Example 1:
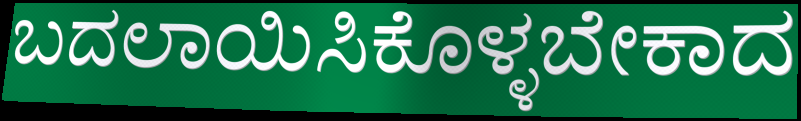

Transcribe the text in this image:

ಬದಲಾಯಿಸಿಕೊಳ್ಳಬೇಕಾದ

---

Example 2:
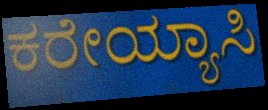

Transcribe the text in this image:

ಕರೇಯ್ಯಾಸಿ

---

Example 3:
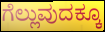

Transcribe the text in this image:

ಗೆಲ್ಲುವುದಕ್ಕೂ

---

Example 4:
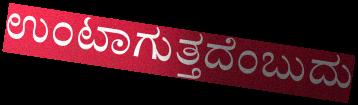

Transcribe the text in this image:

ಉಂಟಾಗುತ್ತದೆಂಬುದು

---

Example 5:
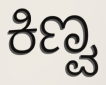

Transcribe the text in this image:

ಕಿಣ್ವ